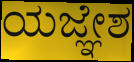
ಯಜ್ಞೇಶ